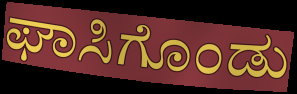
ಘಾಸಿಗೊಂಡು